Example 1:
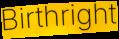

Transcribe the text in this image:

Birthright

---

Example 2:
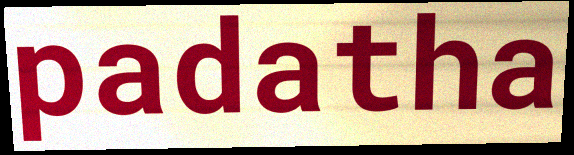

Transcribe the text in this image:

padatha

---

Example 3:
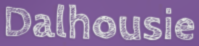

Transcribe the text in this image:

Dalhousie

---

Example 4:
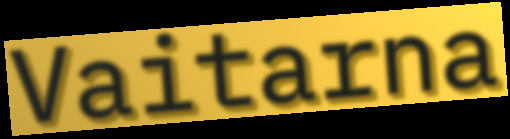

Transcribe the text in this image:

Vaitarna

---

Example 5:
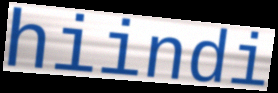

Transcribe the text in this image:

hiindi